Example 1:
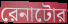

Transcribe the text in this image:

রেনাটোর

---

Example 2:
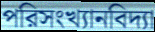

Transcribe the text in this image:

পরিসংখ্যানবিদ্যা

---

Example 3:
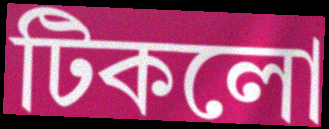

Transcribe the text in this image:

টিকলো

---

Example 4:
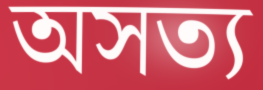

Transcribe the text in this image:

অসত্য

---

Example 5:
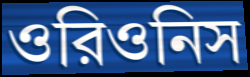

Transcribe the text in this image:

ওরিওনিস